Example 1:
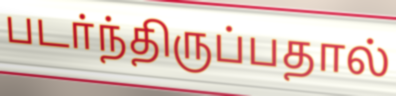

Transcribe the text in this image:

படர்ந்திருப்பதால்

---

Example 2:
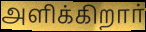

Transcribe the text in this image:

அளிக்கிறார்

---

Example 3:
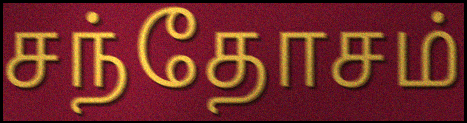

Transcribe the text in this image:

சந்தோசம்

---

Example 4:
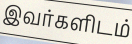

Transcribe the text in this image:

இவர்களிடம்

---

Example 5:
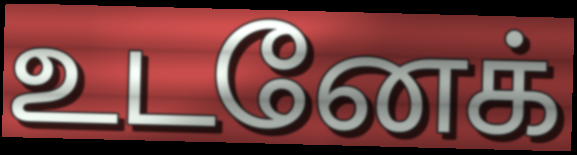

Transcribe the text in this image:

உடனேக்